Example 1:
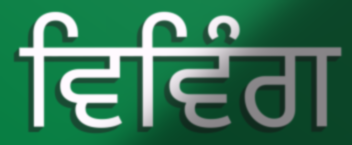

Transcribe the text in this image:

ਵਿਵਿੰਗ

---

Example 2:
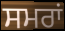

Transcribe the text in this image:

ਸਮਰਾਂ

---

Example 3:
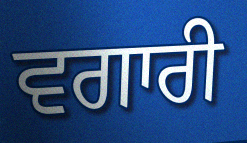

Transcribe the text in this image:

ਵਗਾਰੀ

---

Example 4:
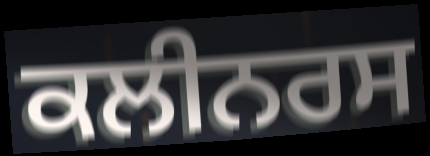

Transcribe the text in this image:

ਕਲੀਨਰਸ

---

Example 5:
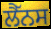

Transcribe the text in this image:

ਲੈੱਨਸ